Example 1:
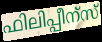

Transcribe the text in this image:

ഫിലിപ്പീന്സ്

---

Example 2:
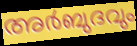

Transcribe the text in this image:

അർബുദവും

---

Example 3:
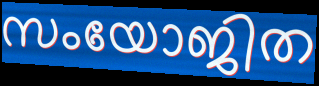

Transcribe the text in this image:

സംയോജിത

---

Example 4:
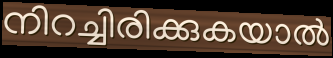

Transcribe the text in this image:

നിറച്ചിരിക്കുകയാൽ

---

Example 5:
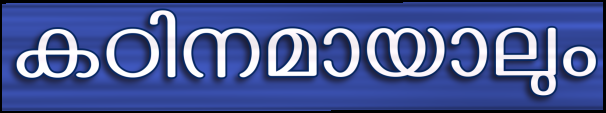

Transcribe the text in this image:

കഠിനമായാലും